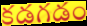
కడగడం